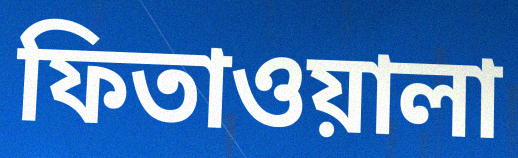
ফিতাওয়ালা